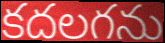
కదలగను